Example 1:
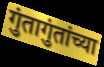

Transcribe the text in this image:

गुंतागुंतांच्या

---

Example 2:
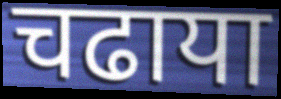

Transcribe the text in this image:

चढाया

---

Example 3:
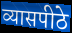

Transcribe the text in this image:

व्यासपीठे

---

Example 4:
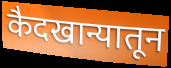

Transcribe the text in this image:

कैदखान्यातून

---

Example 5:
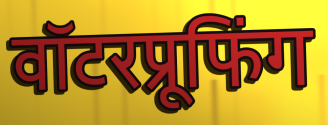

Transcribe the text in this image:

वॉटरप्रूफिंग